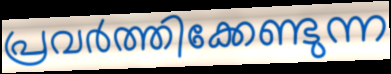
പ്രവർത്തിക്കേണ്ടുന്ന